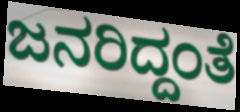
ಜನರಿದ್ದಂತೆ